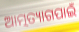
ଆତ୍ମତ୍ୟାଗପାଇଁ